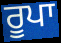
ਰੂਪਾ